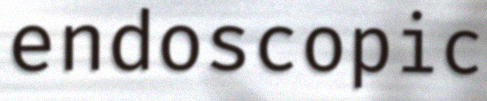
endoscopic